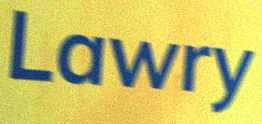
Lawry